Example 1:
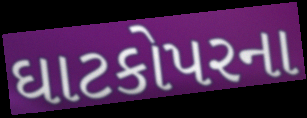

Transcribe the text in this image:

ઘાટકોપરના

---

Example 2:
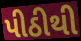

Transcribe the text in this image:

પીઠીથી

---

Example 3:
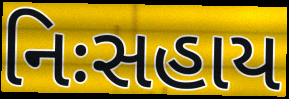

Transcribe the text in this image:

નિઃસહાય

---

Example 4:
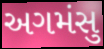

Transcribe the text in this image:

અગમંસુ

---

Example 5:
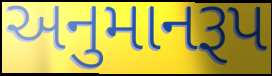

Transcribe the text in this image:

અનુમાનરૂપ